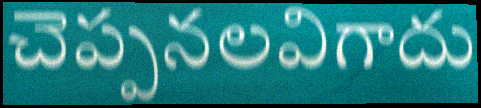
చెప్పనలవిగాదు